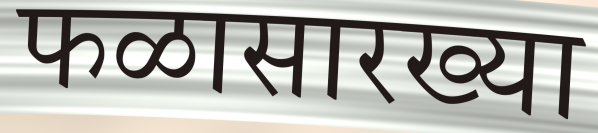
फळासारख्या